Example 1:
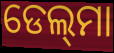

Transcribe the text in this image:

ଡେଲ୍‍ମା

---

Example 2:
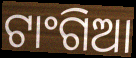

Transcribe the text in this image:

ଟାଂଗିଆ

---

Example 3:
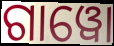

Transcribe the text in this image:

ଗାୱୋ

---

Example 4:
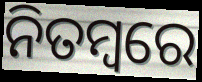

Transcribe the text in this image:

ନିତମ୍ୱରେ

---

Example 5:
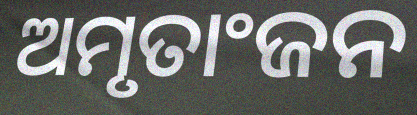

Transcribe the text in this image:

ଅମୃତାଂଜନ